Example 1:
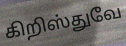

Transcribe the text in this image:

கிறிஸ்துவே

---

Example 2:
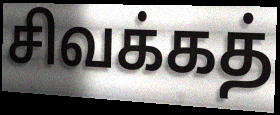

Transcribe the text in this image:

சிவக்கத்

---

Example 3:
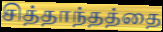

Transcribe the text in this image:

சித்தாந்தத்தை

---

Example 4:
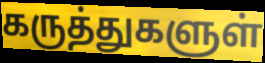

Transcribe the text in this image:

கருத்துகளுள்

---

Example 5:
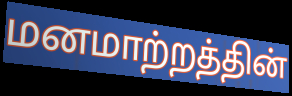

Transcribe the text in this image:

மனமாற்றத்தின்